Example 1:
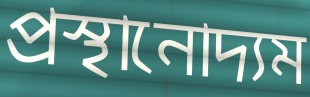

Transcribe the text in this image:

প্রস্থানোদ্যম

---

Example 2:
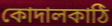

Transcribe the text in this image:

কোদালকাঠি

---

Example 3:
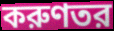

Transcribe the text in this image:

করুণতর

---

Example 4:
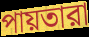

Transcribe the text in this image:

পায়তারা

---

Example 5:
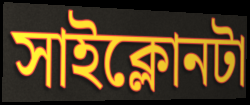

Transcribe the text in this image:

সাইক্লোনটা